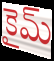
కైమ్